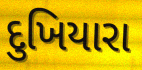
દુખિયારા